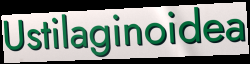
Ustilaginoidea